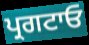
ਪ੍ਰਗਟਾਓ